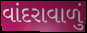
વાંદરાવાળું